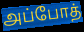
அப்போத்